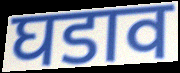
घडाव